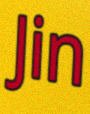
Jin